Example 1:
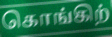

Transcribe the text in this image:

கொங்கிற்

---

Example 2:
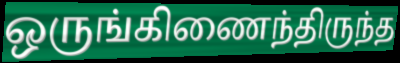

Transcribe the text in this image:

ஒருங்கிணைந்திருந்த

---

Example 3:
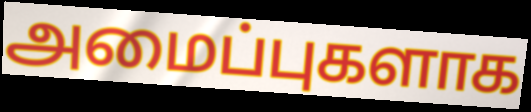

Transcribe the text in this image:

அமைப்புகளாக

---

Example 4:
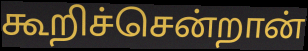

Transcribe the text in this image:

கூறிச்சென்றான்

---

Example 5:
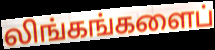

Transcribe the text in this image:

லிங்கங்களைப்